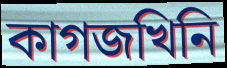
কাগজখিনি